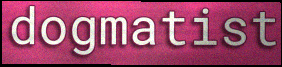
dogmatist